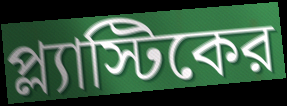
প্ল্যাস্টিকের